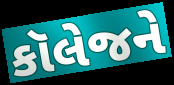
કૉલેજને